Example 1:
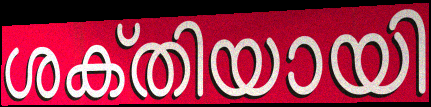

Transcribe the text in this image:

ശക്‌തിയായി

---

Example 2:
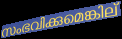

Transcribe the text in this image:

സംഭവിക്കുമെങ്കില്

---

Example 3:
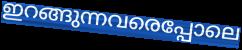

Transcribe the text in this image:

ഇറങ്ങുന്നവരെപ്പോലെ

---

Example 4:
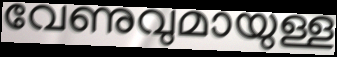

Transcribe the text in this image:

വേണുവുമായുള്ള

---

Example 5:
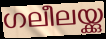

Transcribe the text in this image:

ഗലീലയ്ക്കു